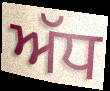
ਅੱਧ